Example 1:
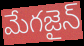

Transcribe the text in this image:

మేగజైన్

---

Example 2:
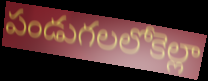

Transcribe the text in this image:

పండుగలలోకెల్లా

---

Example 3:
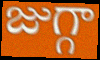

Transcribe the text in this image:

జుగ్గా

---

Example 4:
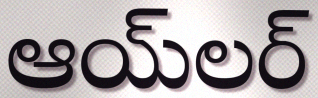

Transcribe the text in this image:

ఆయ్‌లర్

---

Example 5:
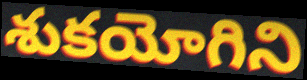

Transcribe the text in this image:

శుకయోగిని